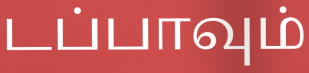
டப்பாவும்